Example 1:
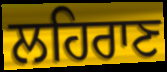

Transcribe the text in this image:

ਲਹਿਰਾਣ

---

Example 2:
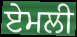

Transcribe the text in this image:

ਏਮਲੀ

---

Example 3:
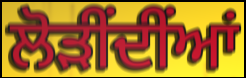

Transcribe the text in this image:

ਲੋੜੀਂਦੀਂਆਂ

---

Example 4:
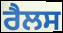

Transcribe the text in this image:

ਰੈਲਸ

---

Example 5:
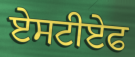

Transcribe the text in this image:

ਏਸਟੀਏਫ